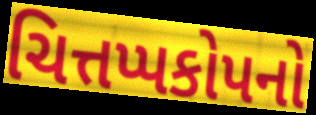
ચિત્તપ્પકોપનો